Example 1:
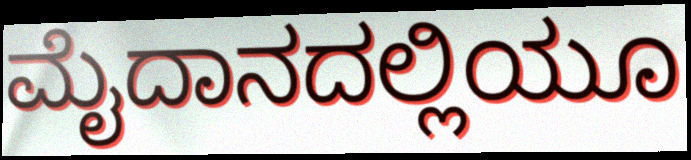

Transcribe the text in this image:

ಮೈದಾನದಲ್ಲಿಯೂ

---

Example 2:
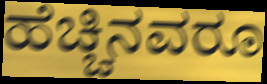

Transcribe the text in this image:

ಹೆಚ್ಚಿನವರೂ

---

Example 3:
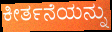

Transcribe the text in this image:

ಕೀರ್ತನೆಯನ್ನು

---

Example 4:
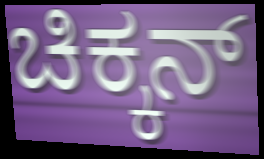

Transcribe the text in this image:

ಚಿಕ್ಕನ್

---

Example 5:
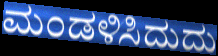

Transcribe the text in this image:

ಮಂಡಳಿಸಿದುದು